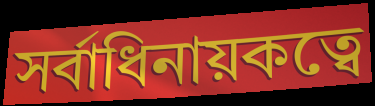
সর্বাধিনায়কত্বে